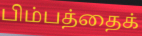
பிம்பத்தைக்